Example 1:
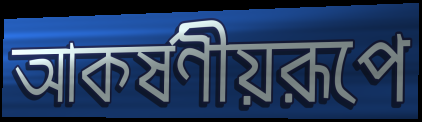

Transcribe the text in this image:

আকর্ষণীয়রূপে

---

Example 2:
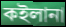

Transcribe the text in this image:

কইলানা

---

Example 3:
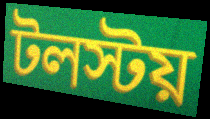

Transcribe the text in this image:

টলস্টয়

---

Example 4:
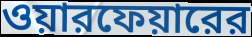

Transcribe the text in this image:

ওয়ারফেয়ারের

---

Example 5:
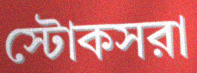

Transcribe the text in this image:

স্টোকসরা